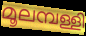
മൂലമ്പള്ളി